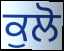
ਕੁਲੋ